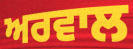
ਅਰਵਾਲ